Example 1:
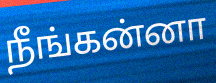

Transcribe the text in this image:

நீங்கன்னா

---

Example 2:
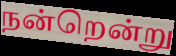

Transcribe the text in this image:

நன்றென்று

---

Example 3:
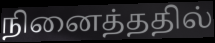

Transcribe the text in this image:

நினைத்ததில்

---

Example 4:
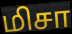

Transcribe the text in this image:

மிசா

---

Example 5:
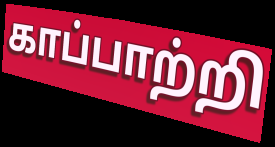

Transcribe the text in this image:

காப்பாற்றி